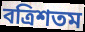
বত্রিশতম